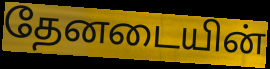
தேனடையின்